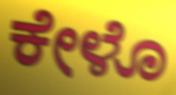
ಕೇಳೊ